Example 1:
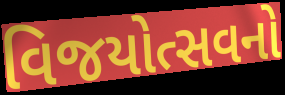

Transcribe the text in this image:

વિજયોત્સવનો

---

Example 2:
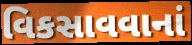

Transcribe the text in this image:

વિકસાવવાનાં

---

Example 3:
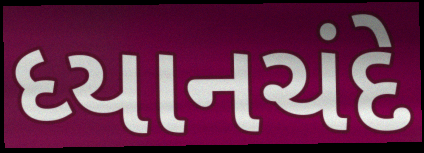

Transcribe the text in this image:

ધ્યાનચંદે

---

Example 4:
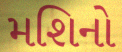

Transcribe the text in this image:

મશિનો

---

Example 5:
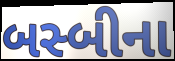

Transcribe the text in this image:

બસ્બીના